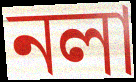
নলা